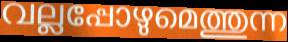
വല്ലപ്പോഴുമെത്തുന്ന